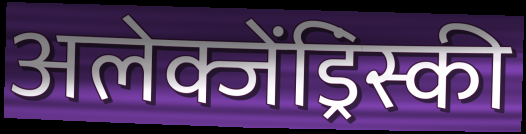
अलेक्जेंड्रिंस्की